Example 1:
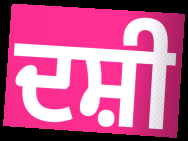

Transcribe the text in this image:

ਦਸ਼ੀ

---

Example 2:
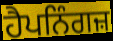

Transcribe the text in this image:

ਹੈਪਨਿੰਗਜ਼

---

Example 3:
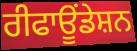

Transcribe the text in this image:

ਰੀਫਾਊਂਡੇਸ਼ਨ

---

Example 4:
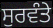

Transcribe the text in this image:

ਸੁਰਵੰਤੇ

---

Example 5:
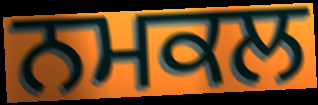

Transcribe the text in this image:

ਨਮਕਲ